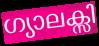
ഗ്യാലക്സി